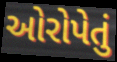
ઓરોપેતું